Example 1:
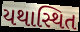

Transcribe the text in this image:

યથાસ્થિત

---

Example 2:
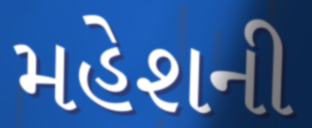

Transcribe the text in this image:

મહેશની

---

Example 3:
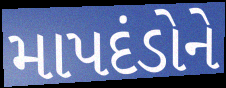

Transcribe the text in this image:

માપદંડોને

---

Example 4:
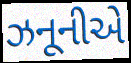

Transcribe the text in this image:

ઝનૂનીએ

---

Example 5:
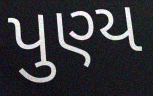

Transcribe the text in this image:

પુણ્ય